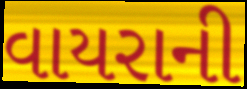
વાયરાની